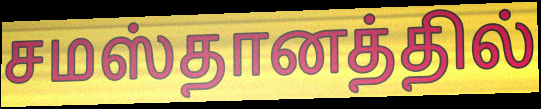
சமஸ்தானத்தில்